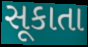
સૂકાતા